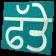
ਫੱਤੇ